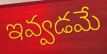
ఇవ్వడమే